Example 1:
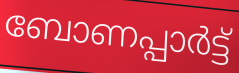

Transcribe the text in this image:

ബോണപ്പാർട്ട്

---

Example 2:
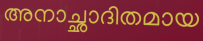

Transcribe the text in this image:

അനാച്ഛാദിതമായ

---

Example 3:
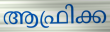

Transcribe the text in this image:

ആഫ്രിക്ക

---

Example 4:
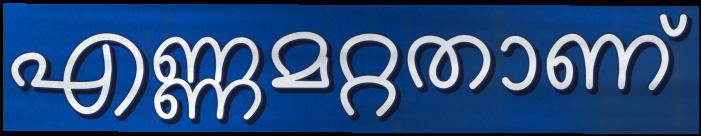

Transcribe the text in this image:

എണ്ണമറ്റതാണ്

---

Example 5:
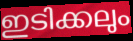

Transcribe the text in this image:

ഇടിക്കലും